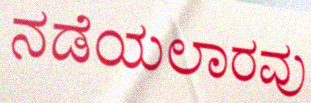
ನಡೆಯಲಾರವು